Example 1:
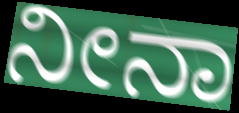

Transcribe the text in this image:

ನೀನಾ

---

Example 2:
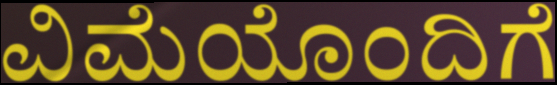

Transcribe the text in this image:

ವಿಮೆಯೊಂದಿಗೆ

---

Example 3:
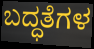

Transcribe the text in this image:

ಬದ್ಧತೆಗಳ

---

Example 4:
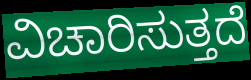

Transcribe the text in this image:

ವಿಚಾರಿಸುತ್ತದೆ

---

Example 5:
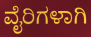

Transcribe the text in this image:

ವೈರಿಗಳಾಗಿ